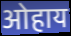
ओहाय